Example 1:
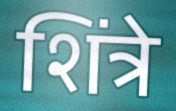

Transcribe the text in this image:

शिंत्रे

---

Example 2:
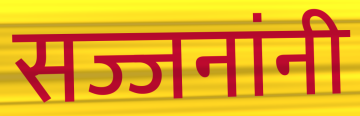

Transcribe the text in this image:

सज्जनांनी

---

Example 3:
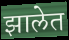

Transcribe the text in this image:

झालेत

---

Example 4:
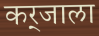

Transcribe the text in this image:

कर्जाला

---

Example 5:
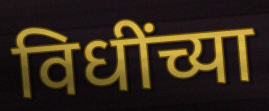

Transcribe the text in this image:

विधींच्या